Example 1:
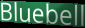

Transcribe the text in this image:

Bluebell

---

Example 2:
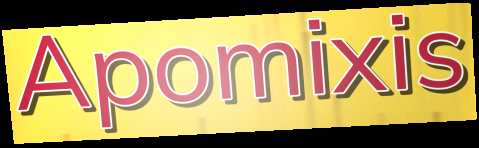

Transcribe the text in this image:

Apomixis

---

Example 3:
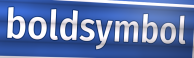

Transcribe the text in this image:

boldsymbol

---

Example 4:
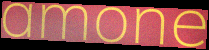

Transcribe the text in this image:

amone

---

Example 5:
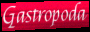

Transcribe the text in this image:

Gastropoda